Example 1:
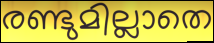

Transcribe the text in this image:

രണ്ടുമില്ലാതെ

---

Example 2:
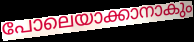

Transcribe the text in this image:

പോലെയാക്കാനാകും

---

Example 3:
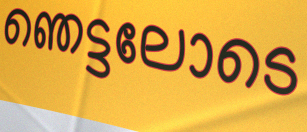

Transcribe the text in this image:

ഞെട്ടലോടെ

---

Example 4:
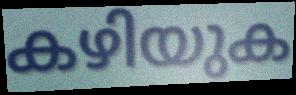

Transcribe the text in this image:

കഴിയുക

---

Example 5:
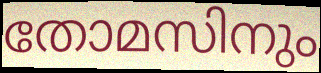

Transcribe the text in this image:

തോമസിനും